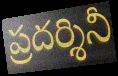
ప్రదర్శినీ